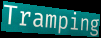
Tramping